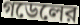
গডেলের